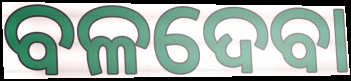
ବଳଦେବା